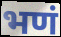
भणं